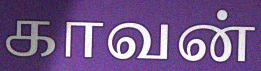
காவன்